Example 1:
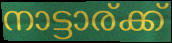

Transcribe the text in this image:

നാട്ടാര്ക്ക്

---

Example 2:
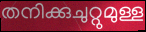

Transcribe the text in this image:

തനിക്കുചുറ്റുമുള്ള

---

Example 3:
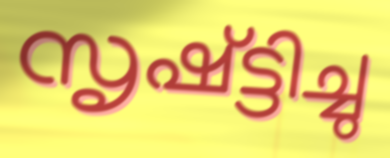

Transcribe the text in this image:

സൃഷ്ട്ടിച്ചു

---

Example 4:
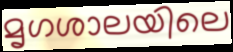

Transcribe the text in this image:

മൃഗശാലയിലെ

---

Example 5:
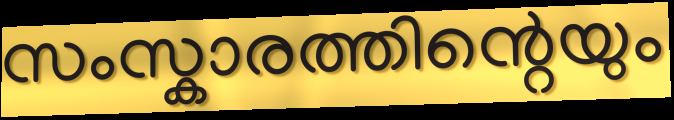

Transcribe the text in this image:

സംസ്കാരത്തിന്റെയും